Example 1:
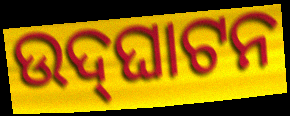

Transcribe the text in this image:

ଉଦ୍‌ଘାଟନ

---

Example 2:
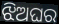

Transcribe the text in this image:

ଝିଅଘର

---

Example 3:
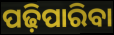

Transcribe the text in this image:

ପଢ଼ିପାରିବା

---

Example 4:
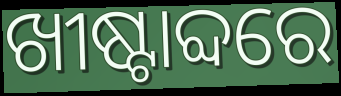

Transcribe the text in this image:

ଖୀଷ୍ଟାବ୍ଦରେ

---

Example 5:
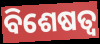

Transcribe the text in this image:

ବିଶେଷତ୍ଵ